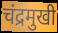
चंद्रमुखी